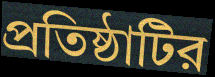
প্রতিষ্ঠাটির